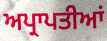
ਅਪ੍ਰਾਪਤੀਆਂ